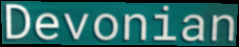
Devonian